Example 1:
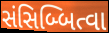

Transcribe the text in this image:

સંસિબ્બિત્વા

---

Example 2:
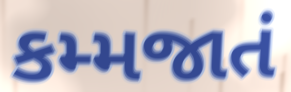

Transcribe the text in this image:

કમ્મજાતં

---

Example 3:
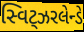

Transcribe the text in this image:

સ્વિટ્ઝરલેન્ડે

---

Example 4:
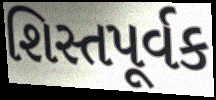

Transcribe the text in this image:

શિસ્તપૂર્વક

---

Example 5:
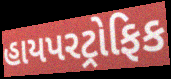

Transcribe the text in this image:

હાયપરટ્રોફિક